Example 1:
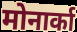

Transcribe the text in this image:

मोनार्का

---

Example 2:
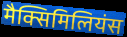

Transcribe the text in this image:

मैक्सिमिलियंस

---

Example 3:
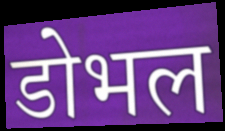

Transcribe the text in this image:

डोभल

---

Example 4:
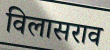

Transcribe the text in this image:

विलासराव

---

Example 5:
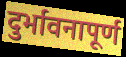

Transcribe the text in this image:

दुर्भावनापूर्ण